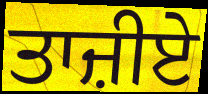
ਤਾਜ਼ੀਏ